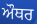
ਔਥਰ